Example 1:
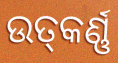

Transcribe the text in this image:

ଉତ୍‍କର୍ଣ୍ଣ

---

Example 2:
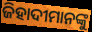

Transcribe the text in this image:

ଜିହାଦୀମାନଙ୍କୁ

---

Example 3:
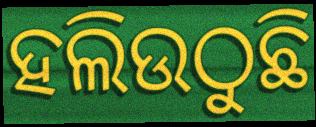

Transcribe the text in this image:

ହଲିଉଠୁଛି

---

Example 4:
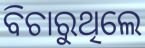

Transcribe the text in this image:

ବିଚାରୁଥିଲେ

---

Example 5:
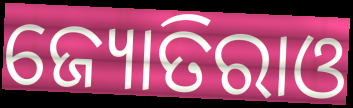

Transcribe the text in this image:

ଜ୍ୟୋତିରାଓ